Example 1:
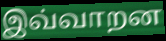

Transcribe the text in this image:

இவ்வாறன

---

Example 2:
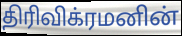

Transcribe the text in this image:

திரிவிக்ரமனின்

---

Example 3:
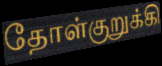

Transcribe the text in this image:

தோள்குறுக்கி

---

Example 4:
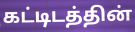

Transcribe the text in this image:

கட்டிடத்தின்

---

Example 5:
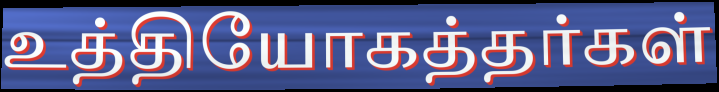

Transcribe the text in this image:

உத்தியோகத்தர்கள்